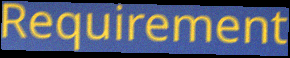
Requirement